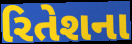
રિતેશના